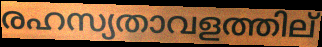
രഹസ്യതാവളത്തില്